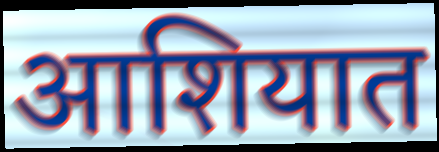
आशियात